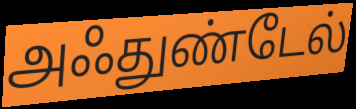
அஃதுண்டேல்